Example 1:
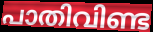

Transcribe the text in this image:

പാതിവിണ്ട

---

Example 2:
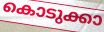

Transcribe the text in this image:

കൊടുക്കാ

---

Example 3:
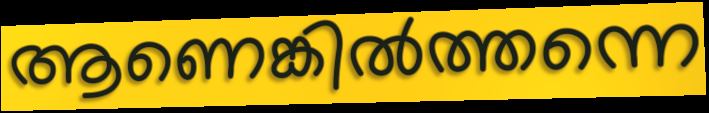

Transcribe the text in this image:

ആണെങ്കിൽത്തന്നെ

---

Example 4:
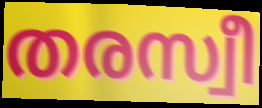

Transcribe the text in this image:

തരസ്വീ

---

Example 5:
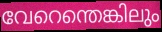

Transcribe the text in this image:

വേറെന്തെങ്കിലും